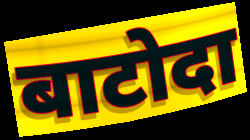
बाटोदा